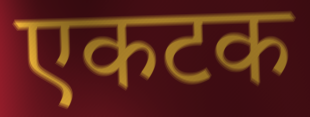
एकटक